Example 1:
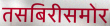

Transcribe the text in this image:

तसबिरीसमोर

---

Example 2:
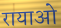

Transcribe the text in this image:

रायाओ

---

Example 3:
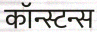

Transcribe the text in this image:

कॉन्स्टन्स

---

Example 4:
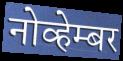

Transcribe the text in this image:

नोव्हेम्बर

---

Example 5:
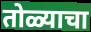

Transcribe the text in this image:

तोळ्याचा